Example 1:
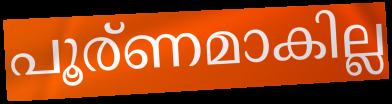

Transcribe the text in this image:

പൂര്ണമാകില്ല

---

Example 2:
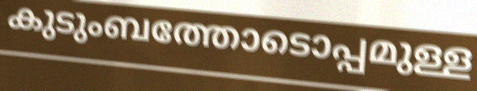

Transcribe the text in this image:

കുടുംബത്തോടൊപ്പമുള്ള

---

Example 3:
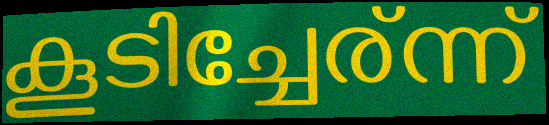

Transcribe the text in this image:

കൂടിച്ചേര്ന്ന്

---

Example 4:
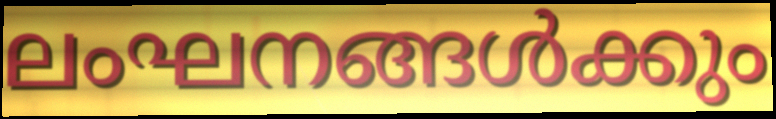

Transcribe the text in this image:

ലംഘനങ്ങൾക്കും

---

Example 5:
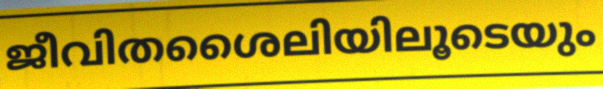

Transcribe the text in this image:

ജീവിതശൈലിയിലൂടെയും